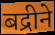
बद्रीने